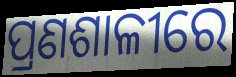
ପ୍ରଣଶାଳୀରେ